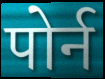
पोर्न